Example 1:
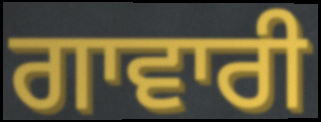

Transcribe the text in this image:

ਗਾਵਾਰੀ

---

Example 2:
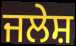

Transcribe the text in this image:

ਜਲੇਸ਼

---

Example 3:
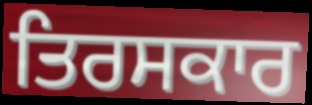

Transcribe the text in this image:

ਤਿਰਸਕਾਰ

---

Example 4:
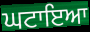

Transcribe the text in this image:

ਘਟਾਇਆ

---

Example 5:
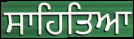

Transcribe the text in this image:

ਸਾਹਿਤਿਆ